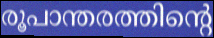
രൂപാന്തരത്തിന്റെ